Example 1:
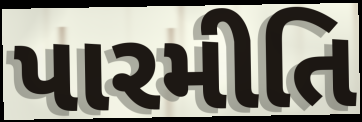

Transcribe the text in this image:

પારમીતિ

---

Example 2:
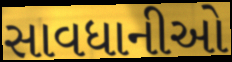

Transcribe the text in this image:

સાવધાનીઓ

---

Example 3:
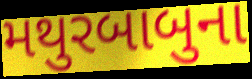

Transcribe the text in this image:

મથુરબાબુના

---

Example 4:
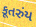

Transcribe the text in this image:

કૂતરુંય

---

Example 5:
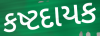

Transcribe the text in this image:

કષ્ટદાયક